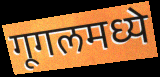
गूगलमध्ये